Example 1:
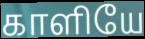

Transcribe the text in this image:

காளியே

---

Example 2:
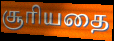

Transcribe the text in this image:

சூரியதை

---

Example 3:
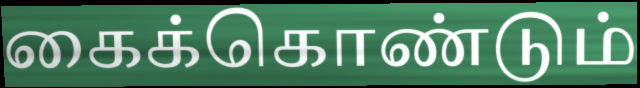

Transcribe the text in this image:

கைக்கொண்டும்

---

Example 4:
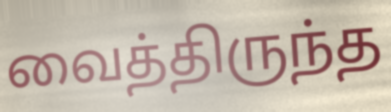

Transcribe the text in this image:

வைத்திருந்த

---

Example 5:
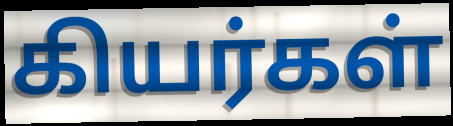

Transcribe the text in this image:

கியர்கள்